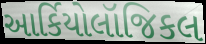
આર્કિયોલૉજિકલ